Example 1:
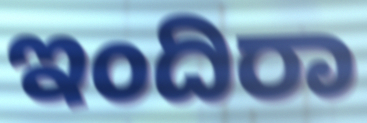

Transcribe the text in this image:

ಇಂದಿರಾ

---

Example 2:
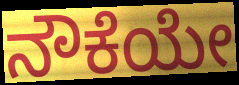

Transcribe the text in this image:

ನೌಕೆಯೇ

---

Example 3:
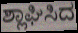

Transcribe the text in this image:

ಶ್ಲಾಘಿಸಿದ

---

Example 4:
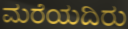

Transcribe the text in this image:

ಮರೆಯದಿರು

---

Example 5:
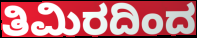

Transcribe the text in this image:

ತಿಮಿರದಿಂದ